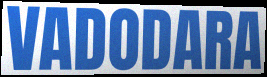
VADODARA